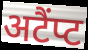
अटैंप्ट